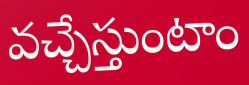
వచ్చేస్తుంటాం